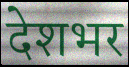
देशभर